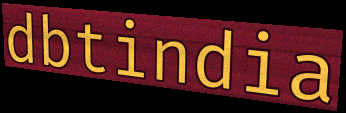
dbtindia